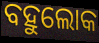
ବହୁଲୋକ